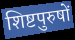
शिष्टपुरुषों